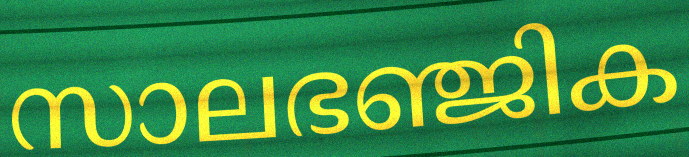
സാലഭഞ്ജിക